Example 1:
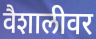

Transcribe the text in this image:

वैशालीवर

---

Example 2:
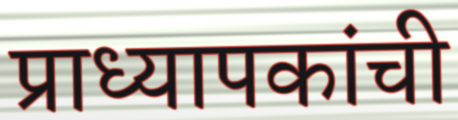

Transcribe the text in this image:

प्राध्यापकांची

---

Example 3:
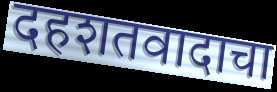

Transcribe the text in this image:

दहशतवादाचा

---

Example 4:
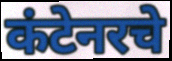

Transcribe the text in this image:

कंटेनरचे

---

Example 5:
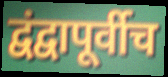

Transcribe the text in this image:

द्वंद्वापूर्वीच